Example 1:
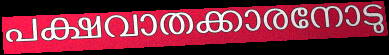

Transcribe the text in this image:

പക്ഷവാതക്കാരനോടു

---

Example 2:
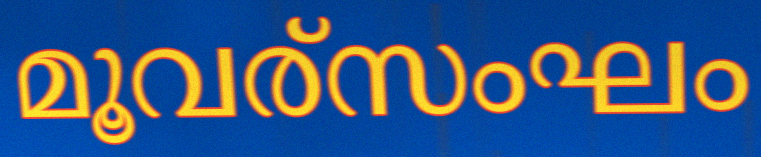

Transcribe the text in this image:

മൂവര്സംഘം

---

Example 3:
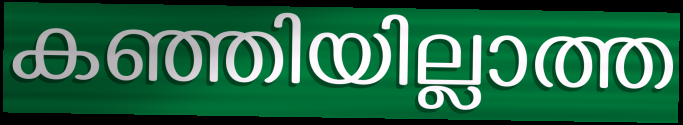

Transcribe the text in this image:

കഞ്ഞിയില്ലാത്ത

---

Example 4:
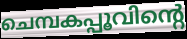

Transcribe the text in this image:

ചെമ്പകപ്പൂവിന്റെ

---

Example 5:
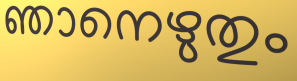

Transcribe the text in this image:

ഞാനെഴുതും